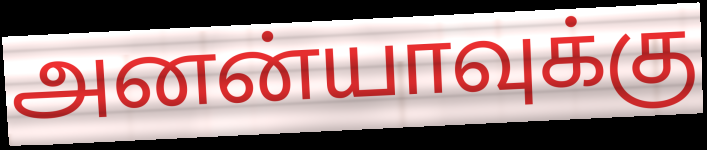
அனன்யாவுக்கு